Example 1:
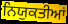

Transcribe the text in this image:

ਨਿਯੁਕਤੀਆਂ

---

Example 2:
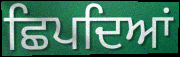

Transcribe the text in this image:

ਛਿਪਦਿਆਂ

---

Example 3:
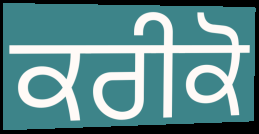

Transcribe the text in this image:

ਕਰੀਕੋ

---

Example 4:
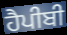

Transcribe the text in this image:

ਹੈਪੀਬੀ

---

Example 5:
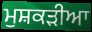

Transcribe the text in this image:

ਮੁਸ਼ਕੜੀਆ